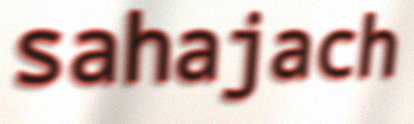
sahajach